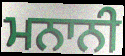
ਮਨਾਨੀ